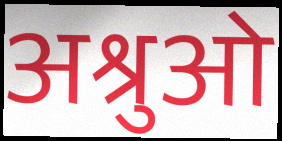
अश्रुओ